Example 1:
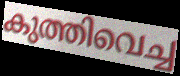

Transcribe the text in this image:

കുത്തിവെച്ച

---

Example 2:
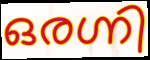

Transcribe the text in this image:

ഒരഗ്നി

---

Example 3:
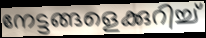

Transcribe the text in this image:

നേട്ടങ്ങളെക്കുറിച്ച്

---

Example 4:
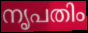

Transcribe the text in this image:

നൃപതിം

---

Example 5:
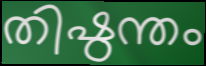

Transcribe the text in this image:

തിഷ്ഠന്തം